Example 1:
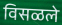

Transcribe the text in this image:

विसळले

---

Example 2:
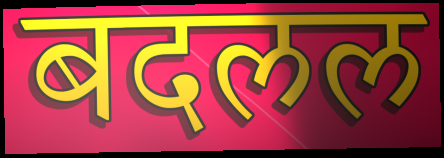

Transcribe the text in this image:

बदलल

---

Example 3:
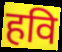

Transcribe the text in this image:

हवि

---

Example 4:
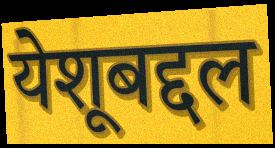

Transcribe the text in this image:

येशूबद्दल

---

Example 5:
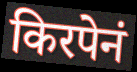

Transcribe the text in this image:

किरपेनं